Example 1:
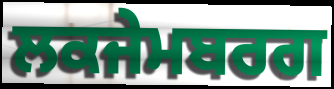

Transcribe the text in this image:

ਲਕਜੇਮਬਰਗ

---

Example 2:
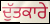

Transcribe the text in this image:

ਦੁੱਤਕਾਰੇ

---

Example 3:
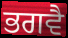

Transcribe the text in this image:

ਭਗਵੈ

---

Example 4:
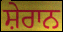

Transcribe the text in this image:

ਸ਼ੇਰਾਨ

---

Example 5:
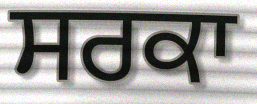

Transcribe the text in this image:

ਸਰਕਾ